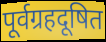
पूर्वग्रहदूषित